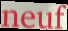
neuf